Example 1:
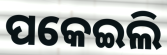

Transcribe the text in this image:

ପକେଇଲି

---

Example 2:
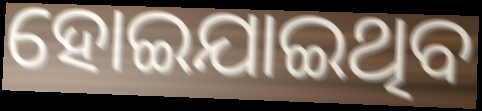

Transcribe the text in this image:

ହୋଇଯାଇଥିବ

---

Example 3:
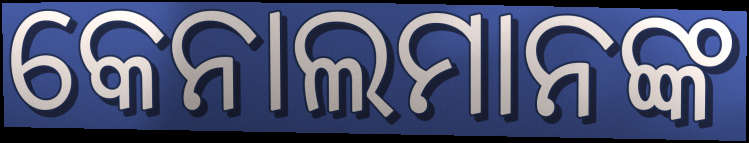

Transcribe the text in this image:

କେନାଲମାନଙ୍କ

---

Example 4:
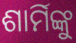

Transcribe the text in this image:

ଶାର୍ମିଙ୍କୁ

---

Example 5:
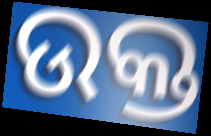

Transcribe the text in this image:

ଉକ୍ତ